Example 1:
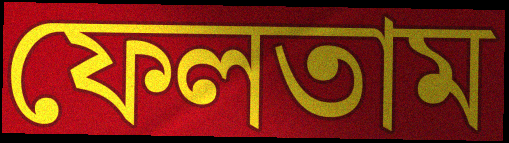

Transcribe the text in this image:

ফেলতাম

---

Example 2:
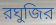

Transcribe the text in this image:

রঘুজির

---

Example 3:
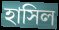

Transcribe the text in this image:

হাসিল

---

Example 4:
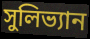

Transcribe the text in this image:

সুলিভ্যান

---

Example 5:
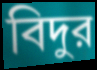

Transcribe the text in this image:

বিদুর